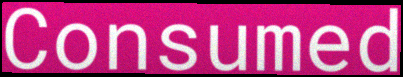
Consumed